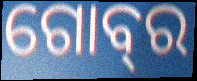
ଗୋବ୍‌ର